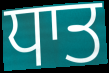
ਧਾਤ